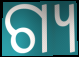
ଗ୍ଯ